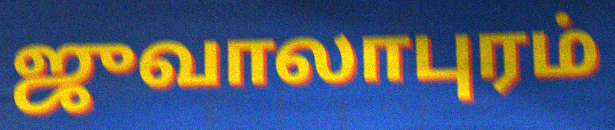
ஜுவாலாபுரம்